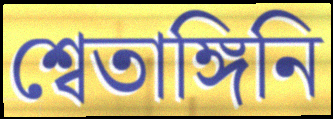
শ্বেতাঙ্গিনি